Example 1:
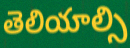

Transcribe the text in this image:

తెలియాల్సి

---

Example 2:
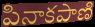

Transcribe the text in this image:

పినాకపాణి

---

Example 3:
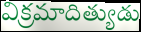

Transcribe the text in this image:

విక్రమాదిత్యుడు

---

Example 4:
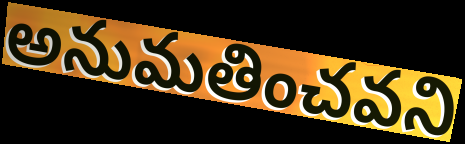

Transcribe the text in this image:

అనుమతించవని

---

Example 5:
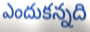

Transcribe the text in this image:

ఎందుకన్నది